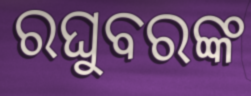
ରଘୁବରଙ୍କ